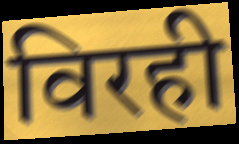
विरही